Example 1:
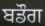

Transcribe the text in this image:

ਬਡੌਗ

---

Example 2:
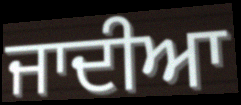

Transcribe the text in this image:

ਜਾਦੀਆ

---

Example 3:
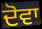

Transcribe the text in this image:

ਦੋਵਾ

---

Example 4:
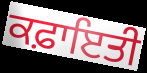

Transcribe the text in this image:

ਕਫ਼ਾਇਤੀ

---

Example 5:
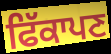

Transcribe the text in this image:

ਫਿੱਕਾਪਣ